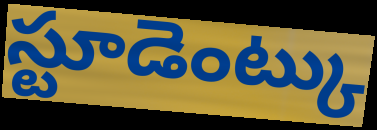
స్టూడెంట్కు